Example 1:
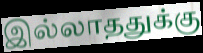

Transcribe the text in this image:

இல்லாததுக்கு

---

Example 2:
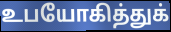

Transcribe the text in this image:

உபயோகித்துக்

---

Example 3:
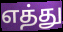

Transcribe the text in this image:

எத்து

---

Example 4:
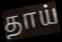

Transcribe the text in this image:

தாய்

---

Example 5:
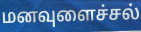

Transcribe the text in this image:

மனவுளைச்சல்